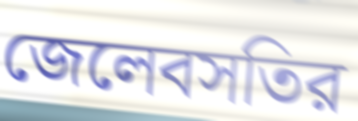
জেলেবসতির